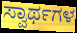
ಸ್ವಾರ್ಥಗಳ